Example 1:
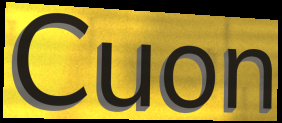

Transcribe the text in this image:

Cuon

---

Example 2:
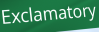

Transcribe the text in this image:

Exclamatory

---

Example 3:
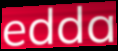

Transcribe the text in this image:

edda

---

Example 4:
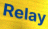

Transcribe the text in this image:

Relay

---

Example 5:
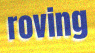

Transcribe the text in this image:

roving